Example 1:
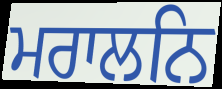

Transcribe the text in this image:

ਮਰਾਲਨਿ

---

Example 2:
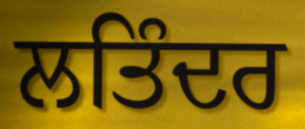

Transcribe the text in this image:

ਲਤਿੰਦਰ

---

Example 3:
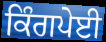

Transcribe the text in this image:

ਕਿੰਗਪੇਈ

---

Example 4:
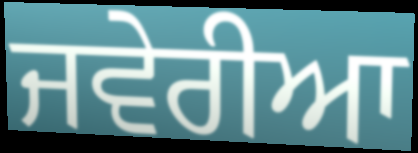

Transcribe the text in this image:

ਜਵੇਰੀਆ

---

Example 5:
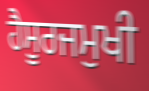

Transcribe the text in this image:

ਹੈਸੂਰਜਮੁਖੀ